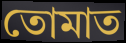
তোমাত